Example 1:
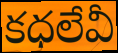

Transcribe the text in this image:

కధలేవీ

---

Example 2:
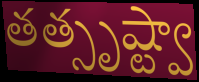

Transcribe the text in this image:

తత్సృష్ట్వా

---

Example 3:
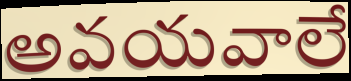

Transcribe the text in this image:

అవయవాలే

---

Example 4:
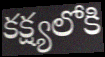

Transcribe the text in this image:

కక్ష్యలోకి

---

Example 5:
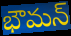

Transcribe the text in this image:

భౌమన్